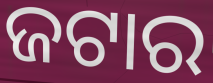
ଜଟାର